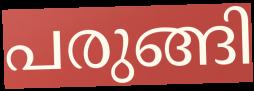
പരുങ്ങി